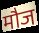
मौज